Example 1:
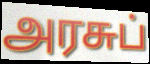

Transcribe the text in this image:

அரசுப்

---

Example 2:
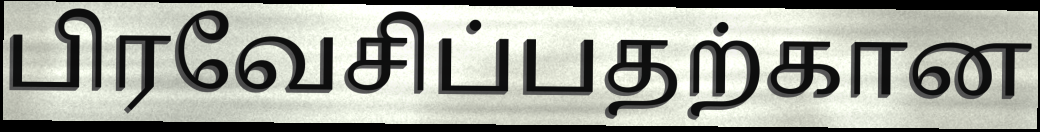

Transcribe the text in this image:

பிரவேசிப்பதற்கான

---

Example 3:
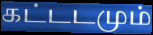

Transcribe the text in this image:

கட்டடமும்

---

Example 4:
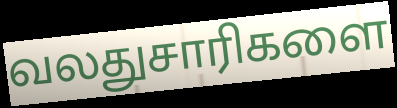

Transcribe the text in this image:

வலதுசாரிகளை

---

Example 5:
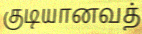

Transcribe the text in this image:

குடியானவத்